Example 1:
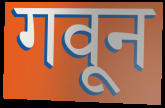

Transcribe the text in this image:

गवून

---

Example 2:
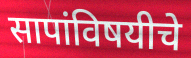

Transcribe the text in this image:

सापांविषयीचे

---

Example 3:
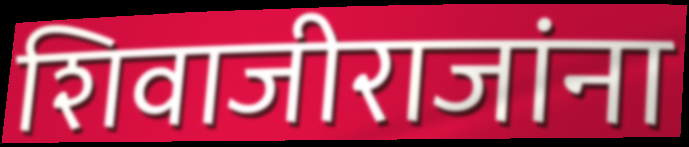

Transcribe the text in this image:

शिवाजीराजांना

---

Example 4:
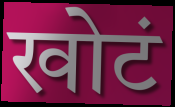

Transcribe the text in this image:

खोटं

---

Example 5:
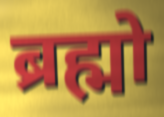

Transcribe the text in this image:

ब्रह्मो